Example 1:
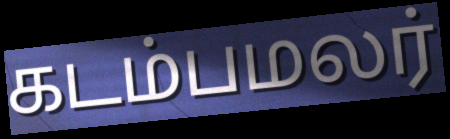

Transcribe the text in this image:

கடம்பமலர்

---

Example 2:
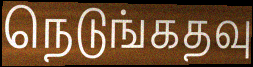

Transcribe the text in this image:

நெடுங்கதவு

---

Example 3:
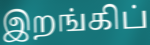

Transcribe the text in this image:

இறங்கிப்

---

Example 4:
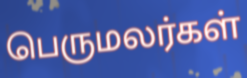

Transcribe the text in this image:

பெருமலர்கள்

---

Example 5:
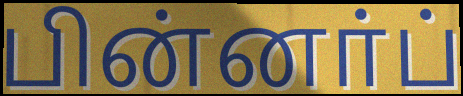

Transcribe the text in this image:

பின்னர்ப்